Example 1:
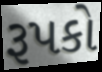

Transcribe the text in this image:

રૂપકો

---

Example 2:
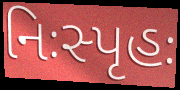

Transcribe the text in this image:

નિઃસ્પૃહઃ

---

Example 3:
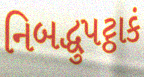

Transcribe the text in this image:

નિબદ્ધુપટ્ઠાકં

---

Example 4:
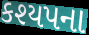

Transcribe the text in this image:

કશ્યપના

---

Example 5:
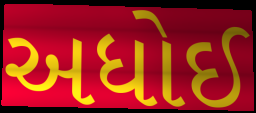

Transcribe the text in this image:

અધોઈ